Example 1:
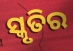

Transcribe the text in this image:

ସ୍କୃତିର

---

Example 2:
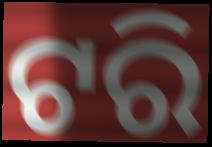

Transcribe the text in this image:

ଟରି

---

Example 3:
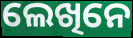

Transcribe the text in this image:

ଲେଖିନେ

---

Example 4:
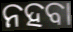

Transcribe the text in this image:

ନହବା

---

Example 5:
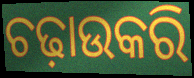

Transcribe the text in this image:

ଚଢ଼ାଉକରି